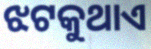
ଝଟକୁଥାଏ